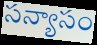
సన్యాసం